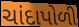
ચાંદાપોળી